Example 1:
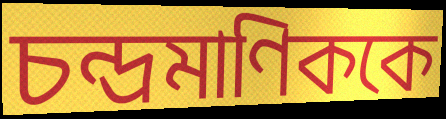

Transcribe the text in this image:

চন্দ্রমাণিককে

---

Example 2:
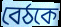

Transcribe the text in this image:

বেঠকে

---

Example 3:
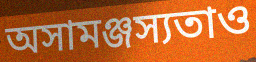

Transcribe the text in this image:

অসামঞ্জস্যতাও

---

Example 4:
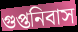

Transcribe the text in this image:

গুপ্তনিবাস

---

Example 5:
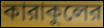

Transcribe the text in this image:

কারাকুলের